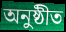
অনুষ্ঠীত